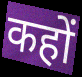
कहों